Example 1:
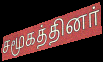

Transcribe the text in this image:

சமூகத்தினர்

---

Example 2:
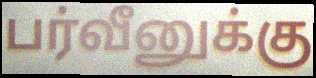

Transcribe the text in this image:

பர்வீனுக்கு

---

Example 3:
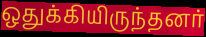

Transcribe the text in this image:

ஒதுக்கியிருந்தனர்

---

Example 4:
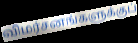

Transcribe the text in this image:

விமர்சனங்களுக்குப்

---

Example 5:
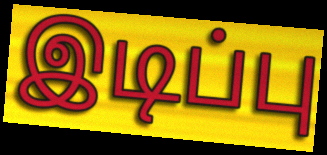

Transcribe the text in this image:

இடிப்பு